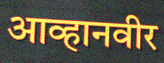
आव्हानवीर